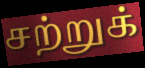
சற்றுக்